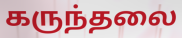
கருந்தலை